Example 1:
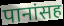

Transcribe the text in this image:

पानांसह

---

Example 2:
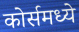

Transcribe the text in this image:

कोर्समध्ये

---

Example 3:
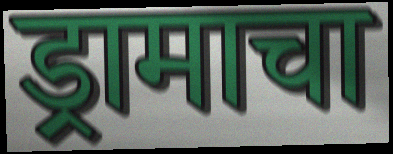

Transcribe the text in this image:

ड्रामाचा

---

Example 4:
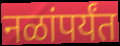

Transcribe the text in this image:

नळांपर्यंत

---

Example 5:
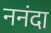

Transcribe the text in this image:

ननंदा